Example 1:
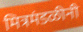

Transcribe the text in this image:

मित्रमंडळीनी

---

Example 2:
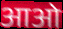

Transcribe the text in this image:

आओ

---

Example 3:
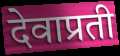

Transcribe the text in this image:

देवाप्रती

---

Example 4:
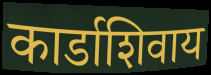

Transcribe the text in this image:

कार्डाशिवाय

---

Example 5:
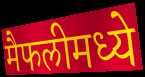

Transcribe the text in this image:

मैफलीमध्ये